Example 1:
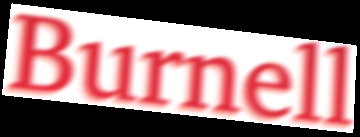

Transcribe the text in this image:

Burnell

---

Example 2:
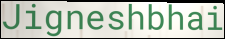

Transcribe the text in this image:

Jigneshbhai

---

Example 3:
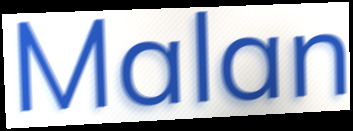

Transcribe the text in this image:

Malan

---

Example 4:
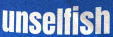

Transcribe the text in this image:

unselfish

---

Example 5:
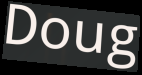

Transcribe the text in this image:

Doug